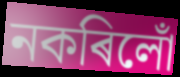
নকৰিলোঁ